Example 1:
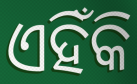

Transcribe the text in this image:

ଏହିଁକି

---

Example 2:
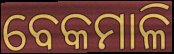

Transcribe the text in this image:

ବେକମାଳି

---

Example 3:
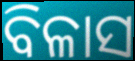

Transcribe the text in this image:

ବିଳାସ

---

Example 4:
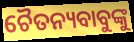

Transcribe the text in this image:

ଚୈତନ୍ୟବାବୁଙ୍କୁ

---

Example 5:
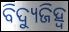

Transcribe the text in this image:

ବିଦ୍ୟୁଜିହ୍ୱ